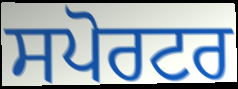
ਸਪੋਰਟਰ